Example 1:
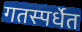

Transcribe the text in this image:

गतस्पर्धेत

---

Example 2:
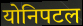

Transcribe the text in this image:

योनिपटल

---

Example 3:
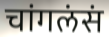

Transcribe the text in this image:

चांगलंसं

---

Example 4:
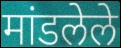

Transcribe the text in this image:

मांडलेले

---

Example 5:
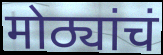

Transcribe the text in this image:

मोठ्यांचं